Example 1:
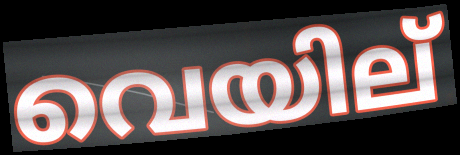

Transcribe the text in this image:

വെയില്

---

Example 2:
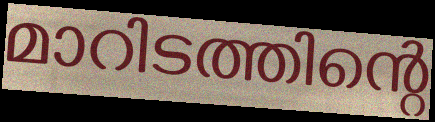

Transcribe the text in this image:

മാറിടത്തിന്റെ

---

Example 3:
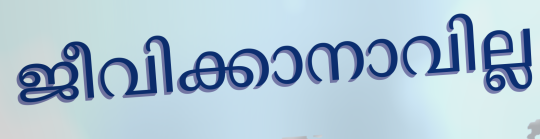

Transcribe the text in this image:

ജീവിക്കാനാവില്ല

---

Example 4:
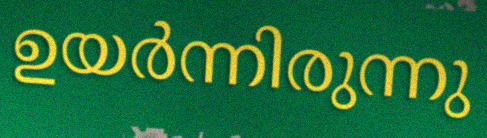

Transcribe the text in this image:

ഉയർന്നിരുന്നു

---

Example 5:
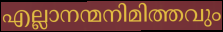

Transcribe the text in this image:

എല്ലാനന്മനിമിത്തവും